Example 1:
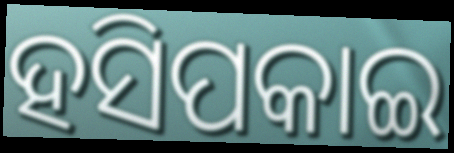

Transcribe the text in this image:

ହସିପକାଇ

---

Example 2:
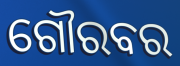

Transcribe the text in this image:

ଗୌରବର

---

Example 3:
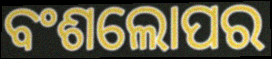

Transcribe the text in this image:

ବଂଶଲୋପର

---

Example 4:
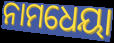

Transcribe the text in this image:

ନାମଧେୟା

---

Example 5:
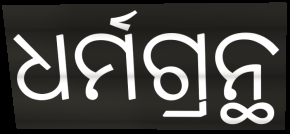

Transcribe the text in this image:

ଧର୍ମଗ୍ରନ୍ଥ